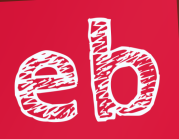
eb